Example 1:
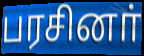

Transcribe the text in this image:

பரசினர்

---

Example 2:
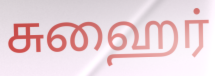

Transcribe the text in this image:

சுஹைர்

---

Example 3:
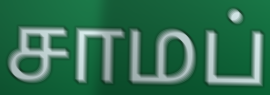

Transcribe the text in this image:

சாமப்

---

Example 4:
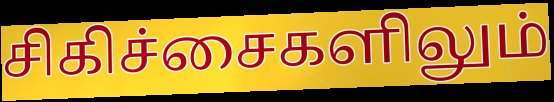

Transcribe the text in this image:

சிகிச்சைகளிலும்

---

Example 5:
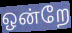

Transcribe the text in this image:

ஒன்றே